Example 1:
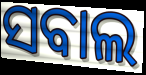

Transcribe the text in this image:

ସବାଲ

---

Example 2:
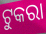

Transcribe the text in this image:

ଟୁକରା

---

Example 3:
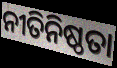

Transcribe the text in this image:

ନୀତିନିଷ୍ଠତା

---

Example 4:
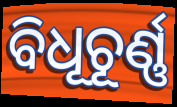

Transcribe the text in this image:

ବିଧୂଚୂର୍ଣ୍ଣ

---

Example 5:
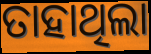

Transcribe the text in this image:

ତାହାଥିଲା